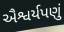
ઐશ્વર્યપણું